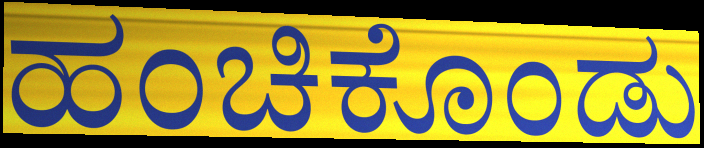
ಹಂಚಿಕೊಂಡು